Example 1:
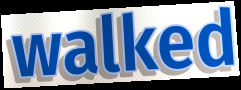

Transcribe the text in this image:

walked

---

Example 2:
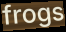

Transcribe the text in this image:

frogs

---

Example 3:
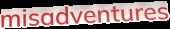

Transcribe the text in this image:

misadventures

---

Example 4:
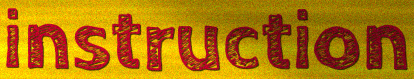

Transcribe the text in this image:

instruction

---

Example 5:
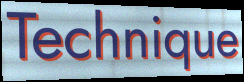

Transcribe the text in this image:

Technique